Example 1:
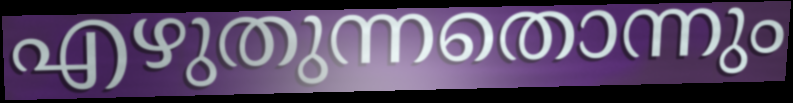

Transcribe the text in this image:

എഴുതുന്നതൊന്നും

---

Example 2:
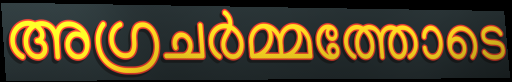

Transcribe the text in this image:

അഗ്രചർമ്മത്തോടെ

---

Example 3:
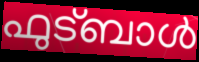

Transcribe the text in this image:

ഫുട്ബാൾ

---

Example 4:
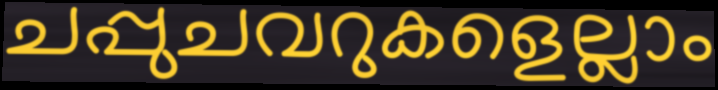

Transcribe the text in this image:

ചപ്പുചവറുകളെല്ലാം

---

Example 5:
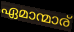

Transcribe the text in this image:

ഏമാന്മാര്